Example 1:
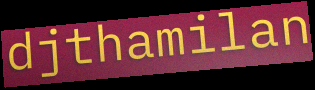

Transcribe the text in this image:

djthamilan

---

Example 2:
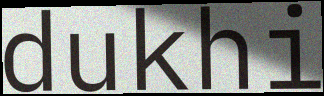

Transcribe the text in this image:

dukhi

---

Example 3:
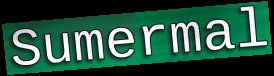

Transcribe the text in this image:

Sumermal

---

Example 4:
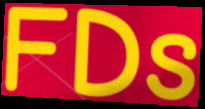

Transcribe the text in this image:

FDs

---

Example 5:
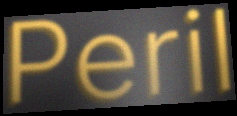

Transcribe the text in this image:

Peril